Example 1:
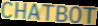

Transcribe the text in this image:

CHATBOT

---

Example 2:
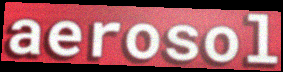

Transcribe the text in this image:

aerosol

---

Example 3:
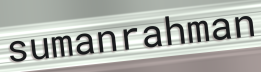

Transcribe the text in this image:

sumanrahman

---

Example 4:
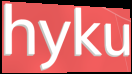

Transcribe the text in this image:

hyku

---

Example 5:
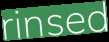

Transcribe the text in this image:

rinsed